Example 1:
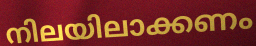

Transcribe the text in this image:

നിലയിലാക്കണം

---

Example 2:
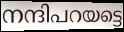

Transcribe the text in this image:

നന്ദിപറയട്ടെ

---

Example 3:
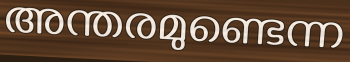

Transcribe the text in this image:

അന്തരമുണ്ടെന്ന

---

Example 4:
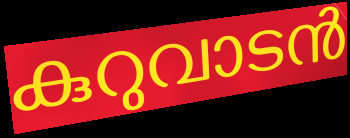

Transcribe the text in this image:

കുറുവാടൻ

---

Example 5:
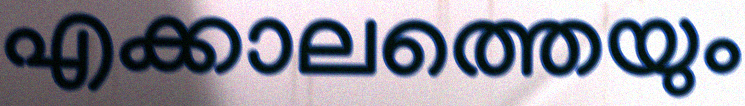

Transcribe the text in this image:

എക്കാലത്തെയും